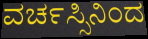
ವರ್ಚಸ್ಸಿನಿಂದ